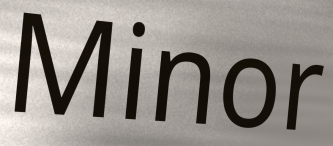
Minor